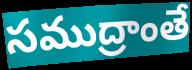
సముద్రాంతే